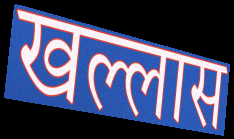
खल्लास